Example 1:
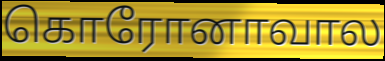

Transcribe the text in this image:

கொரோனாவால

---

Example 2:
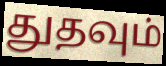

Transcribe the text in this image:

துதவும்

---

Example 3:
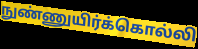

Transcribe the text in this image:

நுண்ணுயிர்க்கொல்லி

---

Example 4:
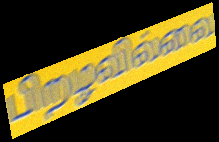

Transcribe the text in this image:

பிறழவில்லை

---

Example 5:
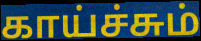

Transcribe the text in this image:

காய்ச்சும்